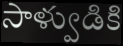
సాళ్వుడికి